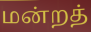
மன்றத்